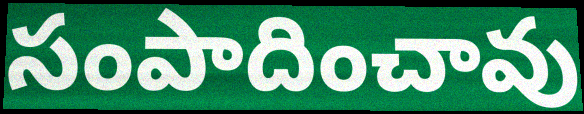
సంపాదించావు